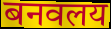
बनवलय